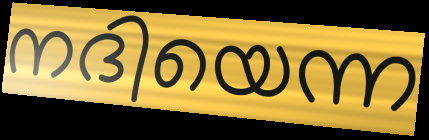
നദിയെന്ന